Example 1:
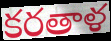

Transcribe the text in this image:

కరతాళ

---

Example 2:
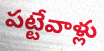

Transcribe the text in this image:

పట్టేవాళ్లు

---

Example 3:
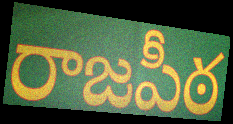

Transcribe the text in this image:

రాజపీఠ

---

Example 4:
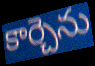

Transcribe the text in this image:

కార్చెను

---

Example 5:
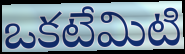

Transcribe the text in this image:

ఒకటేమిటి